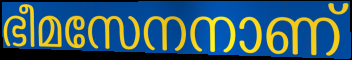
ഭീമസേനനാണ്